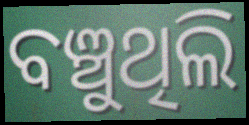
ବଞ୍ଚୁଥିଲି